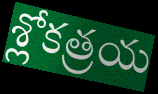
శ్లోకత్రయ